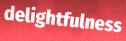
delightfulness